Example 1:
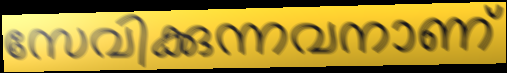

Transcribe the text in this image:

സേവിക്കുന്നവനാണ്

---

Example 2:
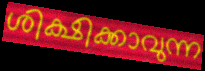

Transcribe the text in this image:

ശിക്ഷിക്കാവുന്ന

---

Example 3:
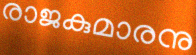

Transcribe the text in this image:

രാജകുമാരനു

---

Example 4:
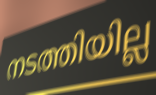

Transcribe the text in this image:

നടത്തിയില്ല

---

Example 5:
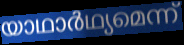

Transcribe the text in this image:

യാഥാർഥ്യമെന്ന്